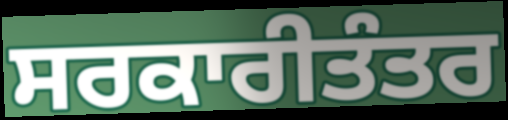
ਸਰਕਾਰੀਤੰਤਰ